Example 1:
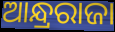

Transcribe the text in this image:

ଆନ୍ଧ୍ରରାଜା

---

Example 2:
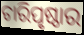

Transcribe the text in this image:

ଚାରିପୃଷ୍ଠାର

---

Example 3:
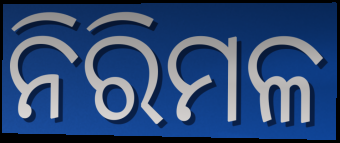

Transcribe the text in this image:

ନିରିମଳ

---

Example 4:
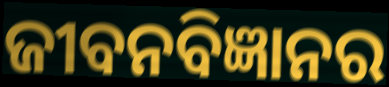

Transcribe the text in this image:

ଜୀବନବିଜ୍ଞାନର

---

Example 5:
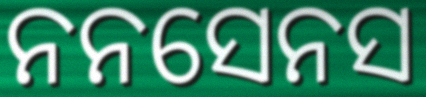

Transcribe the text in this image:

ନନସେନସ